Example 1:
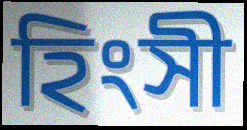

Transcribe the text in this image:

হিংসী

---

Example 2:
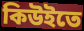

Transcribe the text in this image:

কিউইতে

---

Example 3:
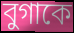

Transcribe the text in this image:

বুগাকে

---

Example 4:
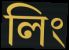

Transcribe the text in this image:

লিং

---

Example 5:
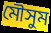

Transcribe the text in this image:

মৌসুম